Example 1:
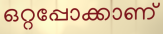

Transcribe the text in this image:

ഒറ്റപ്പോക്കാണ്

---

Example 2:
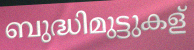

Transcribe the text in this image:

ബുദ്ധിമുട്ടുകള്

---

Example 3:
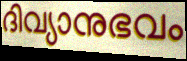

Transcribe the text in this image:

ദിവ്യാനുഭവം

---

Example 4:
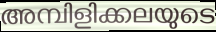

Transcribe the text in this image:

അമ്പിളിക്കലയുടെ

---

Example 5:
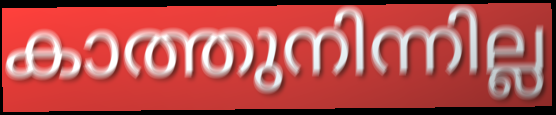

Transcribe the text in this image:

കാത്തുനിന്നില്ല